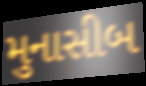
મુનાસીબ